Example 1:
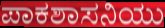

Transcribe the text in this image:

ಪಾಕಶಾಸನಿಯು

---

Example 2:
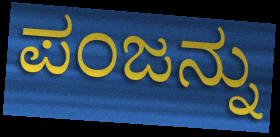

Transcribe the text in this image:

ಪಂಜನ್ನು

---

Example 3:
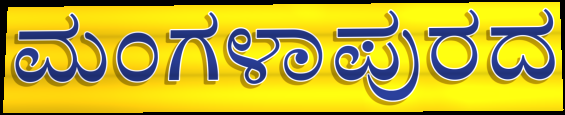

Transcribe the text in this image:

ಮಂಗಳಾಪುರದ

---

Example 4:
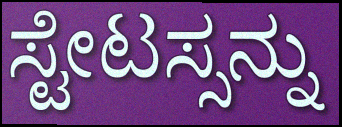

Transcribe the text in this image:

ಸ್ಟೇಟಸ್ಸನ್ನು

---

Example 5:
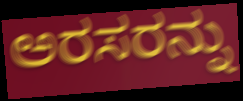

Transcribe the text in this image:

ಅರಸರನ್ನು